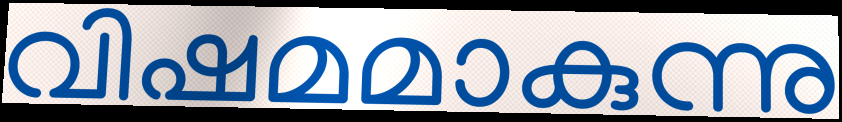
വിഷമമാകുന്നു